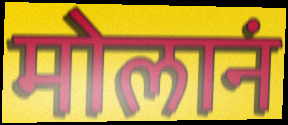
मोलानं